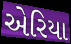
એરિયા